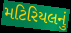
મટિરિયલનું